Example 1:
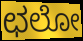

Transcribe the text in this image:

ಛಲೋ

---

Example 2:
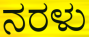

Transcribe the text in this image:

ನರಳು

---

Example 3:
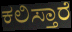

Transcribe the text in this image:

ಕಲಿಸ್ತಾರೆ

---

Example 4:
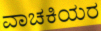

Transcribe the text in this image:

ವಾಚಕಿಯರ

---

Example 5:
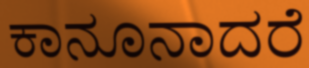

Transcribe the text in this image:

ಕಾನೂನಾದರೆ